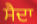
ਸੈਦਾ